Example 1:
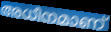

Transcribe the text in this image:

അധീനമാണ്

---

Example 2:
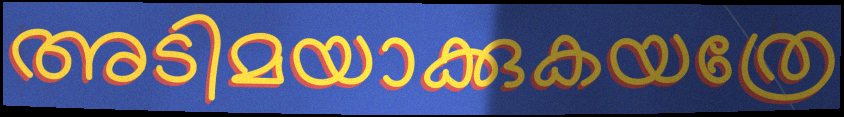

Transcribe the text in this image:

അടിമയാക്കുകയത്രേ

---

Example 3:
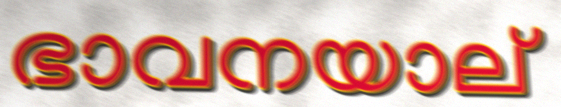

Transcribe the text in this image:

ഭാവനയാല്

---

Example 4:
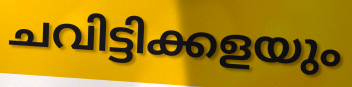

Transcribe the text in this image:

ചവിട്ടിക്കളയും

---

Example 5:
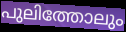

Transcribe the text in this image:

പുലിത്തോലും